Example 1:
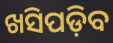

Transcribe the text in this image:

ଖସିପଡ଼ିବ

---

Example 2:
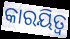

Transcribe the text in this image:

କାରୟିତ୍ୱ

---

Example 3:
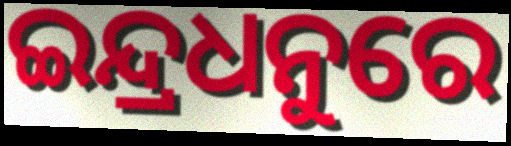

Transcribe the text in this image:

ଇନ୍ଦ୍ରଧନୁରେ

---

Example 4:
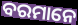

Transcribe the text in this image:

ବରମାନେ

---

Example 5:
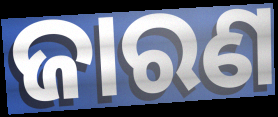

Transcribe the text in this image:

ଜାରଣ